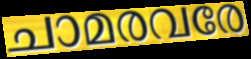
ചാമരവരേ